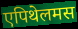
एपिथेलमस